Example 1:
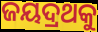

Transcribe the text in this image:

ଜୟଦ୍ରଥକୁ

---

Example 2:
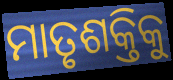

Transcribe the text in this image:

ମାତୃଶକ୍ତିକୁ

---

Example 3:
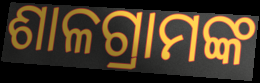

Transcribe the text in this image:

ଶାଳଗ୍ରାମଙ୍କ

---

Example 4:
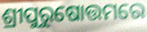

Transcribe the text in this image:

ଶ୍ରୀପୁରୁଷୋତ୍ତମରେ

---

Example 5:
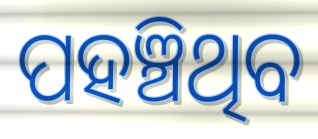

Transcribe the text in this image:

ପହଞ୍ଚିଥିବ